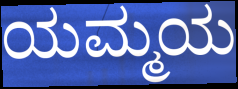
ಯಮ್ಮಯ